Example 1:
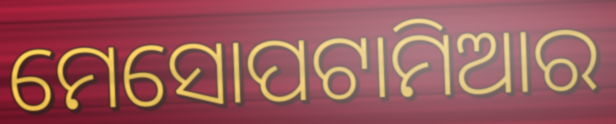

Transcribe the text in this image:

ମେସୋପଟାମିଆର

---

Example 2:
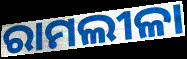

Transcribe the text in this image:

ରାମଲୀଳା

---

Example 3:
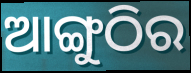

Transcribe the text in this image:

ଆଙ୍ଗୁଠିର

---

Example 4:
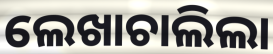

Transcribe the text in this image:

ଲେଖାଚାଲିଲା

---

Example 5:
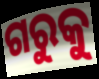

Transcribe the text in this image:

ଗରୁକୁ